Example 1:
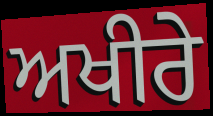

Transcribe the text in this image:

ਅਖੀਰੇ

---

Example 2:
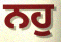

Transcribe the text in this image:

ਨਹੁ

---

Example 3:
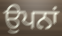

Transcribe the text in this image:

ਉਪਨਾਂ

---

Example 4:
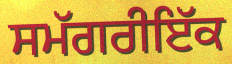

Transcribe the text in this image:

ਸਮੱਗਰੀਇੱਕ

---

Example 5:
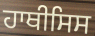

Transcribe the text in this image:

ਹਾਥੀਸਿਸ